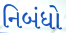
નિબંધો